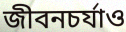
জীবনচর্যাও